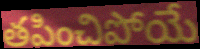
తపించిపోయే